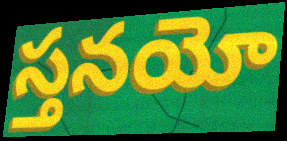
స్తనయో